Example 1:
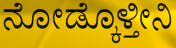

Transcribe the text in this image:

ನೋಡ್ಕೊಳ್ತೀನಿ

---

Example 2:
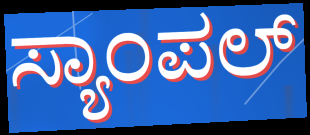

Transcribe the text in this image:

ಸ್ಯಾಂಪಲ್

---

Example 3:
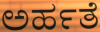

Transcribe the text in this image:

ಅರ್ಹತೆ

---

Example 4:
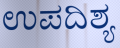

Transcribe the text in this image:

ಉಪದಿಶ್ಯ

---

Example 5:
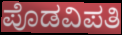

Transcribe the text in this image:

ಪೊಡವಿಪತಿ